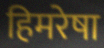
हिमरेषा